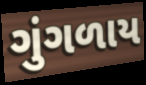
ગુંગળાય